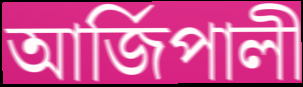
আৰ্জিপালী